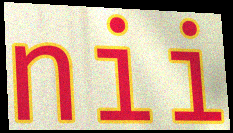
nii